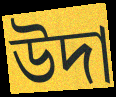
উদা